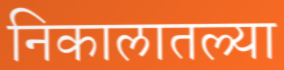
निकालातल्या